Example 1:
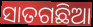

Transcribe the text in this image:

ସାତଗଛିଆ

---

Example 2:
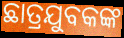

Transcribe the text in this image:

ଛାତ୍ରଯୁବକଙ୍କ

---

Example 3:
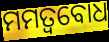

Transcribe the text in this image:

ମମତ୍ବବୋଧ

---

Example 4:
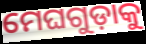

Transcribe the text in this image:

ମେଘଗୁଡ଼ାକୁ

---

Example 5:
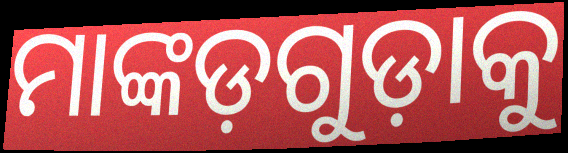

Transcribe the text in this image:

ମାଙ୍କଡ଼ଗୁଡ଼ାକୁ